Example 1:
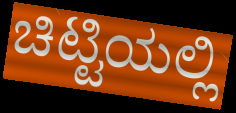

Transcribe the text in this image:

ಚಿಟ್ಟಿಯಲ್ಲಿ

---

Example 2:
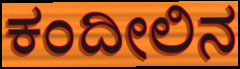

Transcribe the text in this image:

ಕಂದೀಲಿನ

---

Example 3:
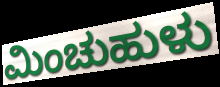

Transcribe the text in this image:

ಮಿಂಚುಹುಳು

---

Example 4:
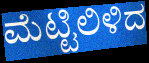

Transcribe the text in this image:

ಮೆಟ್ಟಿಲಿಳಿದ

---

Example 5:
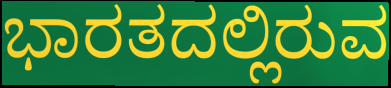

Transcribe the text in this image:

ಭಾರತದಲ್ಲಿರುವ